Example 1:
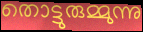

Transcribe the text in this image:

തൊട്ടുരുമ്മുന്നു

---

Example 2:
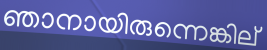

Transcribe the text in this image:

ഞാനായിരുന്നെങ്കില്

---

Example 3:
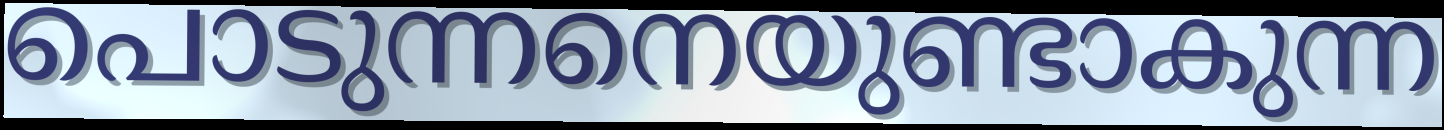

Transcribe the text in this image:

പൊടുന്നനെയുണ്ടാകുന്ന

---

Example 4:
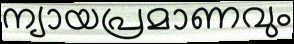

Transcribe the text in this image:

ന്യായപ്രമാണവും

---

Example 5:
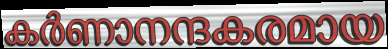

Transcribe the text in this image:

കർണാനന്ദകരമായ